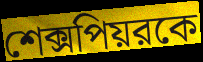
শেক্সপিয়রকে